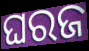
ଘରଜ